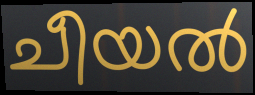
ചീയൽ